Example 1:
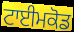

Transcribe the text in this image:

ਟਾਈਮਕੋਡ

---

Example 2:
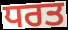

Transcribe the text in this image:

ਧਰਤ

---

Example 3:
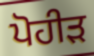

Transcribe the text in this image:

ਪੋਹੀੜ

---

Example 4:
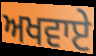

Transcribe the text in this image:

ਅਖਵਾਏ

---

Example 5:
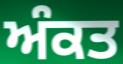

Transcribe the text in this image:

ਅੰਕਤ